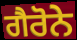
ਗੈਰੋਨੇ